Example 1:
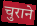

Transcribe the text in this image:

चुराने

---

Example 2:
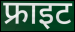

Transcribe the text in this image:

फ्राइट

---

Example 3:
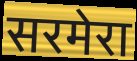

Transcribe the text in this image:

सरमेरा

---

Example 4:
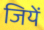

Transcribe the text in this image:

जियें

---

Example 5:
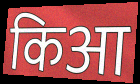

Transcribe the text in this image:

किआ